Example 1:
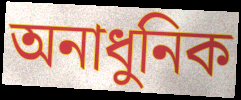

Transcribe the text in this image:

অনাধুনিক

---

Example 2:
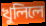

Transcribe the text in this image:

খুলিলে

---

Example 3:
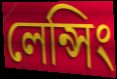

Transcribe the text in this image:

লেন্সিং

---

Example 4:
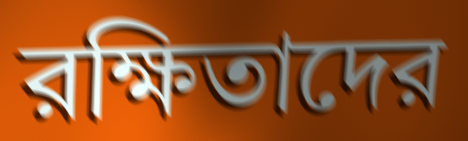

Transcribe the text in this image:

রক্ষিতাদের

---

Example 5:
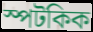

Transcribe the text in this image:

স্পটকিক